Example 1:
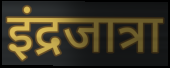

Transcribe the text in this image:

इंद्रजात्रा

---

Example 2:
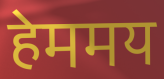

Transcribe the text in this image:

हेममय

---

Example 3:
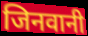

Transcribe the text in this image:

जिनवानी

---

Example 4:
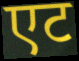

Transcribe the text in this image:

एट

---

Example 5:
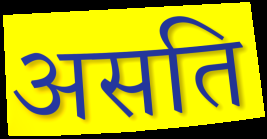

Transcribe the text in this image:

असति